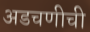
अडचणीची